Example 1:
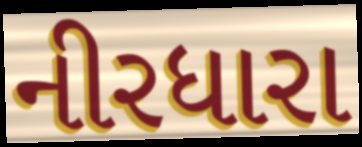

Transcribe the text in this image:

નીરધારા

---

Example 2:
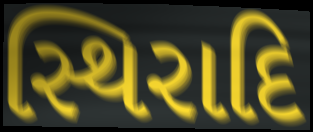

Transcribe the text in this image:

સ્થિરાદિ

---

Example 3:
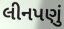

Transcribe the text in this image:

લીનપણું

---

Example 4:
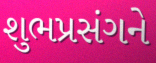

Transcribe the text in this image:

શુભપ્રસંગને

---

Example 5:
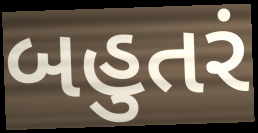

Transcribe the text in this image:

બહુતરં